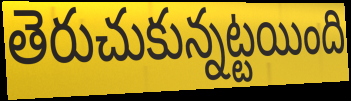
తెరుచుకున్నట్టయింది